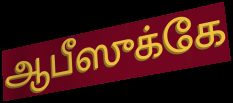
ஆபீஸுக்கே